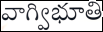
వాగ్విభూతి